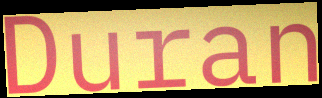
Duran